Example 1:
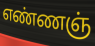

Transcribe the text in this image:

எண்ணஞ்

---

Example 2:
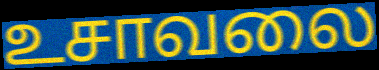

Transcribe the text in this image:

உசாவலை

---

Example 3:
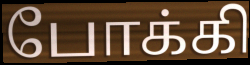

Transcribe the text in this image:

போக்கி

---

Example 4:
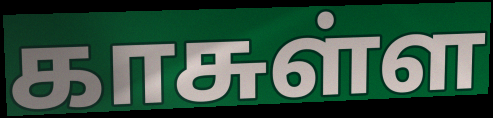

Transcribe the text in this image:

காசுள்ள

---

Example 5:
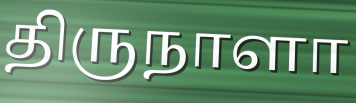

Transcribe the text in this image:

திருநாளா